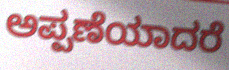
ಅಪ್ಪಣೆಯಾದರೆ